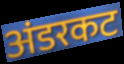
अंडरकट